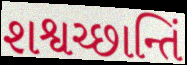
શશ્વચ્છાન્તિં